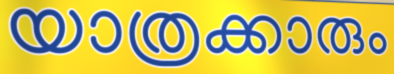
യാത്രക്കാരും